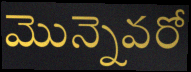
మొన్నెవరో